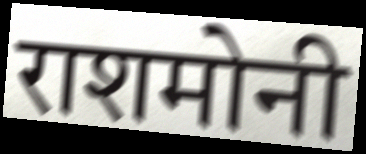
राशमोनी